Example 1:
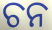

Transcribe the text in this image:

ଚନ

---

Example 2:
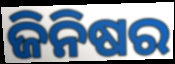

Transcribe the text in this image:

ଜିନିଷର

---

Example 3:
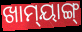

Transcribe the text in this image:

ଖାମ୍‌ୟାଙ୍ଗ୍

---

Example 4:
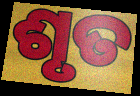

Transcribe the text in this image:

ଶୃତ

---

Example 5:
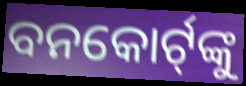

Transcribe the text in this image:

ବନକୋର୍ଟ୍‍ଙ୍କୁ